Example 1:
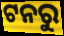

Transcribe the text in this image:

ଟନରୁ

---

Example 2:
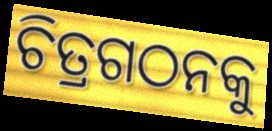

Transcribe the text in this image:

ଚିତ୍ରଗଠନକୁ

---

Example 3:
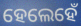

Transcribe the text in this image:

ହେଲେହେଁ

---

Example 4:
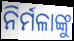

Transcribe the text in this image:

ନିର୍ମଳାଙ୍କୁ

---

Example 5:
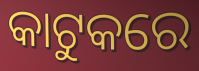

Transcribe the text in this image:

କାଟୁକରେ